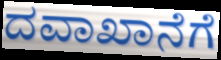
ದವಾಖಾನೆಗೆ